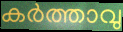
കർത്താവു